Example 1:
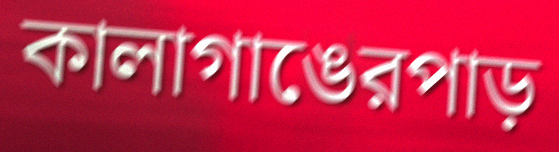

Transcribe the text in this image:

কালাগাঙেরপাড়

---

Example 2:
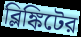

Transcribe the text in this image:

ব্লিঙ্কিটের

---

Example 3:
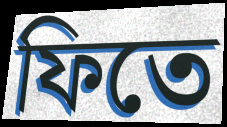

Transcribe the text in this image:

ফিতে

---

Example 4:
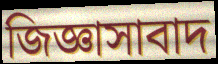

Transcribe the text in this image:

জিজ্ঞাসাবাদ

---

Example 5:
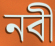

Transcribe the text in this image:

নবী